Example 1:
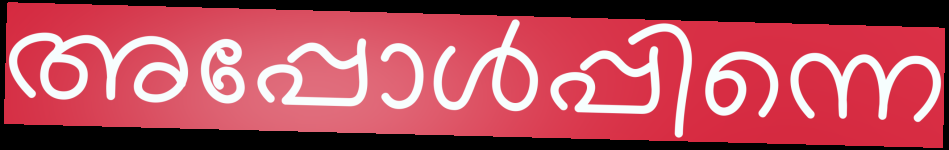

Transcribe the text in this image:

അപ്പോൾപ്പിന്നെ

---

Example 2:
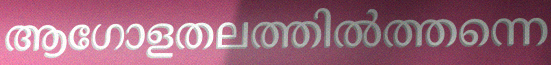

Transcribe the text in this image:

ആഗോളതലത്തിൽത്തന്നെ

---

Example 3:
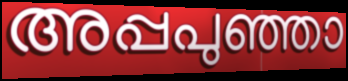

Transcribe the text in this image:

അപ്പപുഞ്ഞാ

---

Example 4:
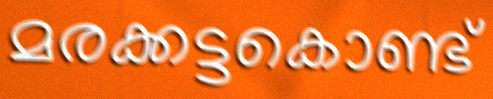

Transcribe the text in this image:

മരക്കട്ടകൊണ്ട്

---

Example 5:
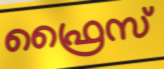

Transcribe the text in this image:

ഫ്രൈസ്